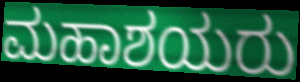
ಮಹಾಶಯರು